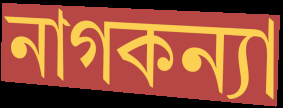
নাগকন্যা